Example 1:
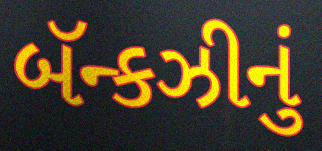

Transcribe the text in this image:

બૅન્કઝીનું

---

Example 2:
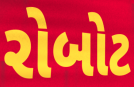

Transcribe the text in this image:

રોબોટ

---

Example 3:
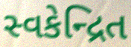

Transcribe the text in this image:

સ્વકેન્દ્રિત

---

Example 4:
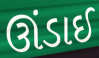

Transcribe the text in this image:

ઊંડાઈ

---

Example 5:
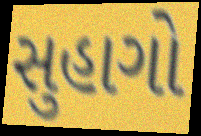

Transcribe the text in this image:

સુહાગો